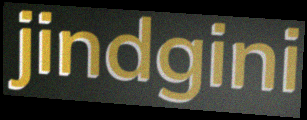
jindgini